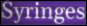
Syringes